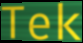
Tek